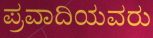
ಪ್ರವಾದಿಯವರು